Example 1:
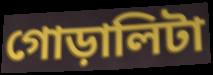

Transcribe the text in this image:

গোড়ালিটা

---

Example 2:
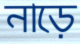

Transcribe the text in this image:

নাড়ে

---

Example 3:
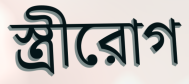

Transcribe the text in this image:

স্ত্রীরোগ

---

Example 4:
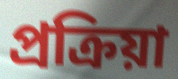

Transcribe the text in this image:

প্রক্রিয়া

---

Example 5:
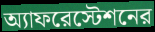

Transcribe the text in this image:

অ্যাফরেস্টেশনের